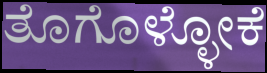
ತೊಗೊಳ್ಳೋಕೆ